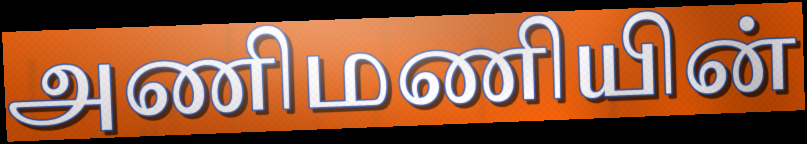
அணிமணியின்